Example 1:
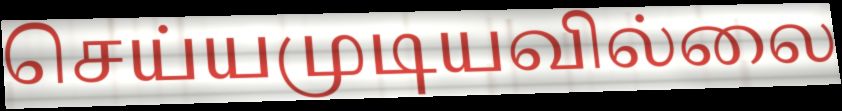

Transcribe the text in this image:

செய்யமுடியவில்லை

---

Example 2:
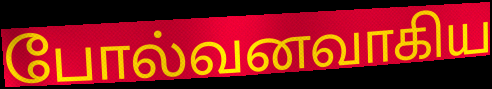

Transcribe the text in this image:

போல்வனவாகிய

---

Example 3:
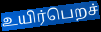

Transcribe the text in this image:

உயிர்பெறச்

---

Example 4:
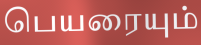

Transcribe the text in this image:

பெயரையும்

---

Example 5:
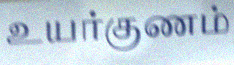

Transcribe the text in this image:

உயர்குணம்